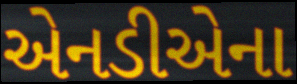
એનડીએના